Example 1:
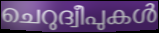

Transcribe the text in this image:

ചെറുദ്വീപുകൾ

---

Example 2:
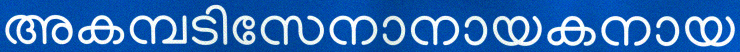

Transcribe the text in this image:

അകമ്പടിസേനാനായകനായ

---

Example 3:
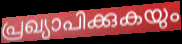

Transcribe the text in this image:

പ്രഖ്യാപിക്കുകയും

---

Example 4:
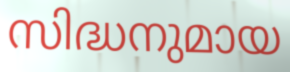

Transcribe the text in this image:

സിദ്ധനുമായ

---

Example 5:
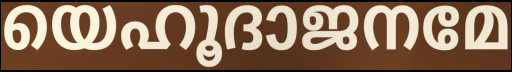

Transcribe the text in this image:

യെഹൂദാജനമേ